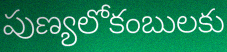
పుణ్యలోకంబులకు